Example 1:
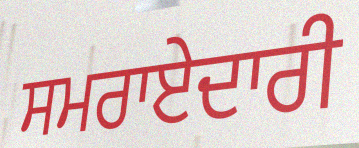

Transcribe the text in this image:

ਸਮਰਾਏਦਾਰੀ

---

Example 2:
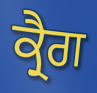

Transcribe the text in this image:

ਕ੍ਰੈਗ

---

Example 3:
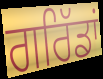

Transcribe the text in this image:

ਗਰਿੱਡਾਂ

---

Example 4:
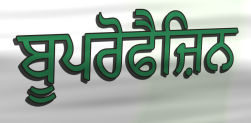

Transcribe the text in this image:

ਬੂਪਰੋਫੈਜ਼ਿਨ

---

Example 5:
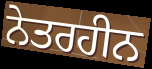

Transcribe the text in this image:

ਨੇਤਰਹੀਨ